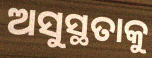
ଅସୁସ୍ଥତାକୁ